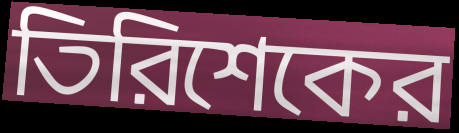
তিরিশেকের